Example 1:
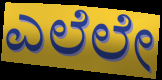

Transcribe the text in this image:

ಎಲೆಲೇ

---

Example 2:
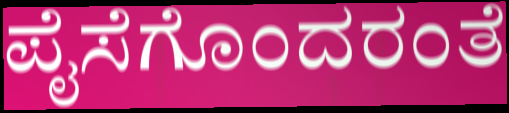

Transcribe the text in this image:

ಪೈಸೆಗೊಂದರಂತೆ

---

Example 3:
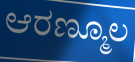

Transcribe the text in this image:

ಆರಣ್ಮೂಲ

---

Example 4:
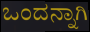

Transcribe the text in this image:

ಒಂದನ್ನಾಗಿ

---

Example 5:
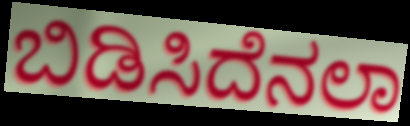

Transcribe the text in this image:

ಬಿಡಿಸಿದೆನಲಾ